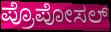
ಪ್ರೊಪೋಸಲ್